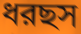
ধরছস